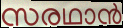
സരഥാൻ